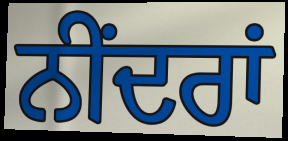
ਨੀਂਦਰਾਂ